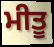
ਮੀਤੂ